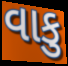
વાકુ